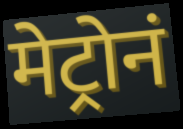
मेट्रोनं